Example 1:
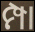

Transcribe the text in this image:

ମ୍ପା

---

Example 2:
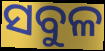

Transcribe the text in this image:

ସବୁଳ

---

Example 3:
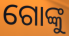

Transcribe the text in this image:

ଗୋଙ୍କୁ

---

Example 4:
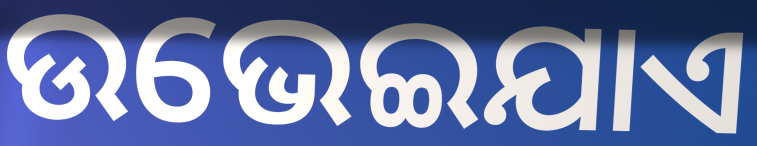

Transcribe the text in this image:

ଉଭେଇଯାଏ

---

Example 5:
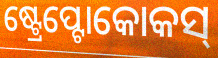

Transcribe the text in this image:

ଷ୍ଟ୍ରେପ୍ଟୋକୋକସ୍